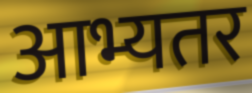
आभ्यतर